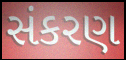
સંકરણ